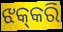
ଝକ୍‌କରି